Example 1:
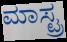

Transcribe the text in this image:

ಮಾಸ್ಟ್ರ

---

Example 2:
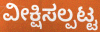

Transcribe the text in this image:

ವೀಕ್ಷಿಸಲ್ಪಟ್ಟ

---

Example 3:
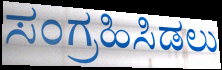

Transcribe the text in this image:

ಸಂಗ್ರಹಿಸಿಡಲು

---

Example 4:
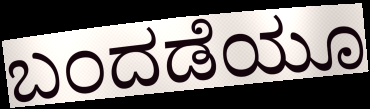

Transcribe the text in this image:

ಬಂದಡೆಯೂ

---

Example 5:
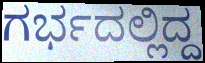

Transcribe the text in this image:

ಗರ್ಭದಲ್ಲಿದ್ದ